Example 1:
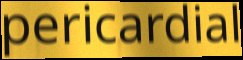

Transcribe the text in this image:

pericardial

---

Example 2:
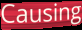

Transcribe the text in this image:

Causing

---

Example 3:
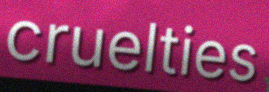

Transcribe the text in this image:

cruelties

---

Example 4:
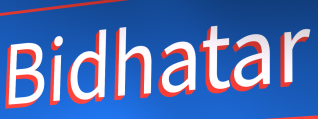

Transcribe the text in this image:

Bidhatar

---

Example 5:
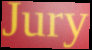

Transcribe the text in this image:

Jury